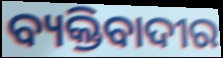
ବ୍ୟକ୍ତିବାଦୀର